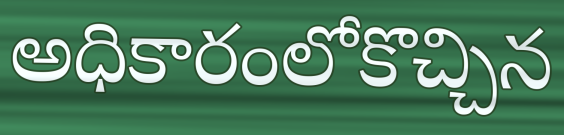
అధికారంలోకొచ్చిన